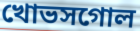
খোভসগোল